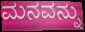
ಮನವನ್ನು